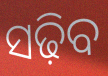
ସଢ଼ିବ